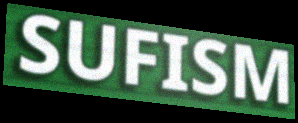
SUFISM